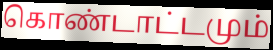
கொண்டாட்டமும்